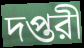
দপ্তরী